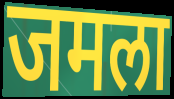
जमला